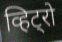
व्हिट्रो